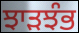
ਝਾੜਝੰਭ